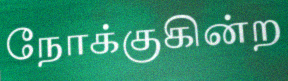
நோக்குகின்ற